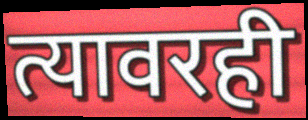
त्यावरही